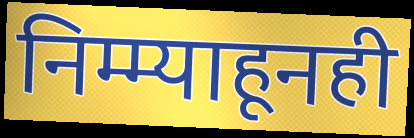
निम्म्याहूनही